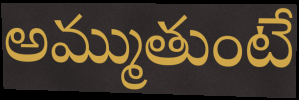
అమ్ముతుంటే